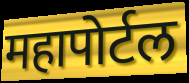
महापोर्टल